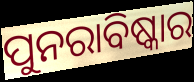
ପୁନରାବିଷ୍କାର